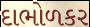
દાભોળકર